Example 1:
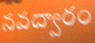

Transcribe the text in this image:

నవద్వారం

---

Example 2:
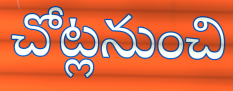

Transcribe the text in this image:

చోట్లనుంచి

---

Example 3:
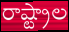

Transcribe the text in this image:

రాష్ట్రాల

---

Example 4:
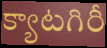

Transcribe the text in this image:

క్యాటగిరీ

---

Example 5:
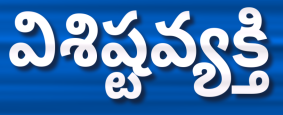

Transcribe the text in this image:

విశిష్టవ్యక్తి